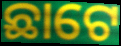
ଛାଟେ